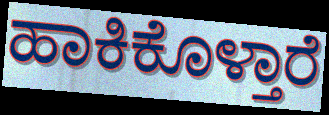
ಹಾಕಿಕೊಳ್ತಾರೆ